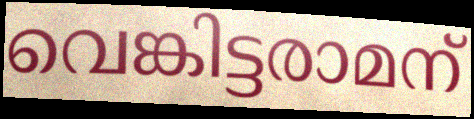
വെങ്കിട്ടരാമന്